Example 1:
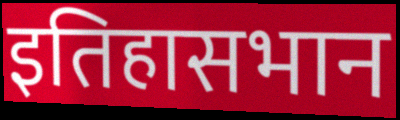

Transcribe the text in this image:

इतिहासभान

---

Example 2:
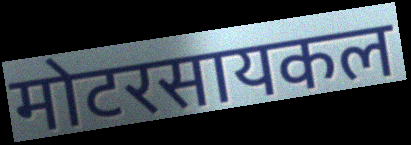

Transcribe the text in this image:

मोटरसायकल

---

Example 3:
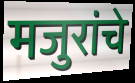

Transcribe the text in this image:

मजुरांचे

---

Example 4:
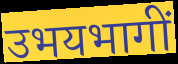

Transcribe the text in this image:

उभयभागीं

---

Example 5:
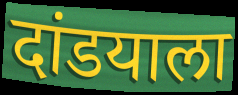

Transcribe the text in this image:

दांडयाला